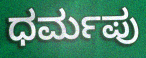
ಧರ್ಮಪು